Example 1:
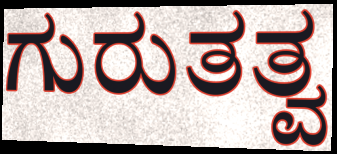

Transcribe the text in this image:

ಗುರುತತ್ವ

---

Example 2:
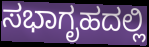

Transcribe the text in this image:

ಸಭಾಗೃಹದಲ್ಲಿ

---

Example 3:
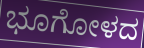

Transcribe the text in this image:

ಭೂಗೋಳದ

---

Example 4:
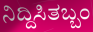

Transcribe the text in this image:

ನಿದ್ದಿಸಿತಬ್ಬಂ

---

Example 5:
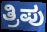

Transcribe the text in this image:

ತ್ರಿಪು